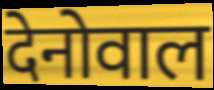
देनोवाल